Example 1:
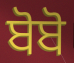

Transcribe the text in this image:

ਬੋਬੋ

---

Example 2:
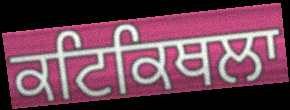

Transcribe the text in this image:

ਕਟਿਕਿਥਲਾ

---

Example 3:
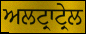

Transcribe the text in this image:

ਅਲਟ੍ਰਾਟ੍ਰੇਲ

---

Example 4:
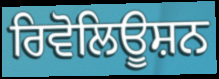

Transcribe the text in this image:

ਰਿਵੋਲਿਊਸ਼ਨ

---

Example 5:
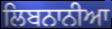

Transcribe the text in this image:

ਲਿਬਨਾਨੀਆ